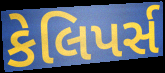
કેલિપર્સ